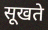
सूखते